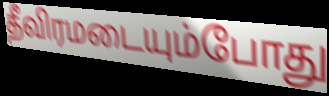
தீவிரமடையும்போது